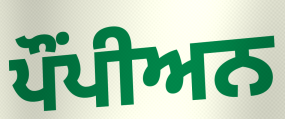
ਪੌਂਪੀਅਨ